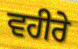
ਵਹੀਰੇ